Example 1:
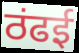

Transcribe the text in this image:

ठंढई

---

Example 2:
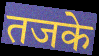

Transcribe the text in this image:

तजके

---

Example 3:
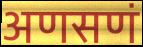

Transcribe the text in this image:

अणसणं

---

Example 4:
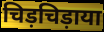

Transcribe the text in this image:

चिड़चिड़ाया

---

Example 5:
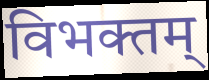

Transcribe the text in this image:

विभक्तम्